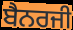
ਬੈਨਰਜੀ